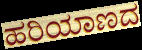
ಹರಿಯಾಣದ